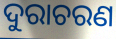
ଦୁରାଚରଣ